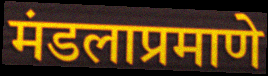
मंडलाप्रमाणे